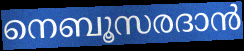
നെബൂസരദാൻ